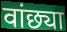
वांछ्या